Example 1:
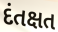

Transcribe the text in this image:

દંતક્ષત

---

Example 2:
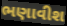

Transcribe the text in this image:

ભણાવીશ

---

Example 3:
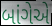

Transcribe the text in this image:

બાંગેએ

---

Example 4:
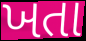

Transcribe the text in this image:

ખતા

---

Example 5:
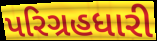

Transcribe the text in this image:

પરિગ્રહધારી